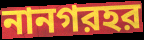
নানগরহর